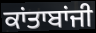
ਕਾਂਤਾਬਾਂਜੀ